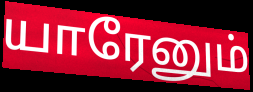
யாரேனும்